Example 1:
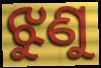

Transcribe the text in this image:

ଝୁଣୁ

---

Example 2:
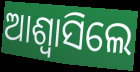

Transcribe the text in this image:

ଆଶ୍ୱାସିଲେ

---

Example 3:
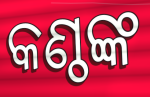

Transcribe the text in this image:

କଣ୍ଠଙ୍କ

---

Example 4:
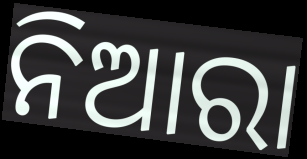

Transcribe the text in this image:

ନିଆରା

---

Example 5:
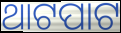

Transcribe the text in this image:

ଥାଟପାଟ